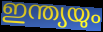
ഇന്ത്യയും